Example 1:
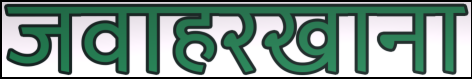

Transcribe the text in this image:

जवाहरखाना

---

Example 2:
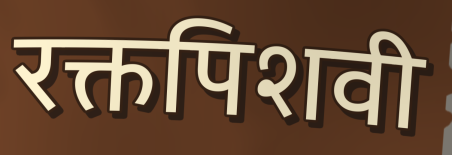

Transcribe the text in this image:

रक्तपिशवी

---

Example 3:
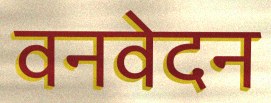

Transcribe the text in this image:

वनवेदन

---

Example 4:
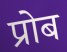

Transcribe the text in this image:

प्रोब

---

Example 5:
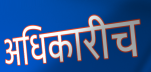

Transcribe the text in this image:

अधिकारीच